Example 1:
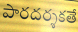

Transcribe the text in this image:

పారదర్శకతే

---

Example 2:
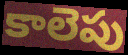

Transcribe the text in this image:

కాలెపు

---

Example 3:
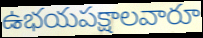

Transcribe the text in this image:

ఉభయపక్షాలవారూ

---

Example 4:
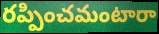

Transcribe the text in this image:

రప్పించమంటారా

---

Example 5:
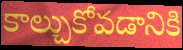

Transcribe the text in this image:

కాల్చుకోవడానికి